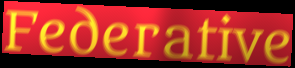
Federative